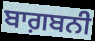
ਬਾਗ਼ਬਨੀ